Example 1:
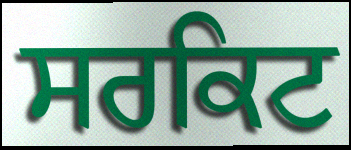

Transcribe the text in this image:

ਸਰਕਿਟ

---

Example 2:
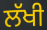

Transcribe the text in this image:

ਲੱਖੀ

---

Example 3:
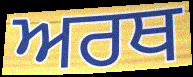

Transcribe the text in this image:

ਅਰਥ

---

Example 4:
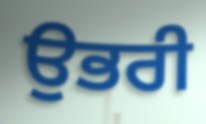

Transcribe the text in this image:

ਉਭਰੀ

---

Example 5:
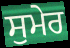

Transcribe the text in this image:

ਸੁਮੇਰ